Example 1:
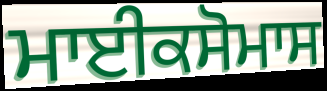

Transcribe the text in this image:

ਮਾਈਕਸੋਮਾਸ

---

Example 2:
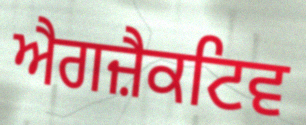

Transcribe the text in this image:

ਐਗਜ਼ੈਕਟਿਵ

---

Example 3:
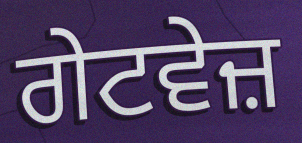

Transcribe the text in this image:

ਗੇਟਵੇਜ਼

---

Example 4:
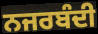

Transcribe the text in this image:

ਨਜਰਬੰਦੀ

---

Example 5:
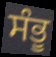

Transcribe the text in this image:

ਸੰਭੂ